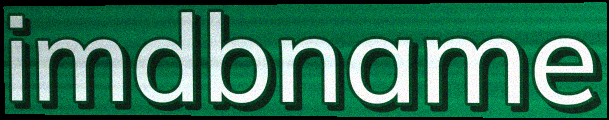
imdbname